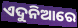
ଏଦୁନିଆରେ